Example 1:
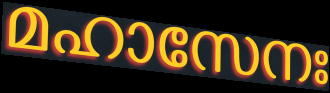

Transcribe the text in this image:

മഹാസേനഃ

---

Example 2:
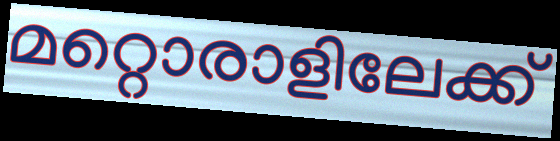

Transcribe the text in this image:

മറ്റൊരാളിലേക്ക്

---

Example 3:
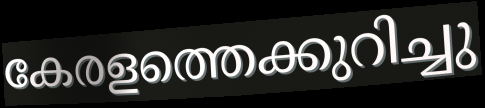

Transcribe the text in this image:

കേരളത്തെക്കുറിച്ചു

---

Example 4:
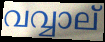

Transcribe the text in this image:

വവ്വാല്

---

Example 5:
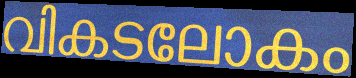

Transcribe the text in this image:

വികടലോകം